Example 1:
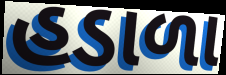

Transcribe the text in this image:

હડાળા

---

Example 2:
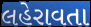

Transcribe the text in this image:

લહેરાવતા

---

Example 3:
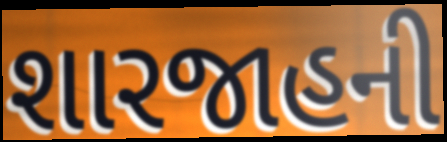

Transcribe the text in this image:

શારજાહની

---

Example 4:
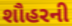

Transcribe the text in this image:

શૌહરની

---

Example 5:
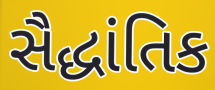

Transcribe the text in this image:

સૈદ્ધાંતિક